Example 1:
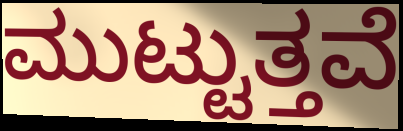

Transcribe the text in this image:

ಮುಟ್ಟುತ್ತವೆ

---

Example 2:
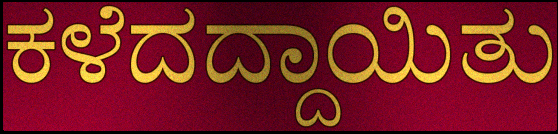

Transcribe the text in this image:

ಕಳೆದದ್ದಾಯಿತು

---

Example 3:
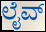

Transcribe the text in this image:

ಲೈವ್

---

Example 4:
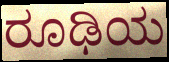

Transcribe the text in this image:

ರೂಢಿಯ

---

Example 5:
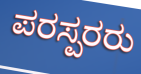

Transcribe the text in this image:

ಪರಸ್ಪರರು